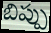
బిప్పు